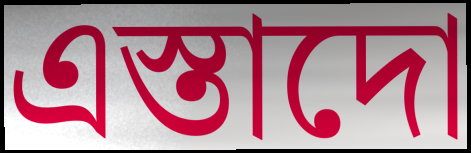
এস্তাদো